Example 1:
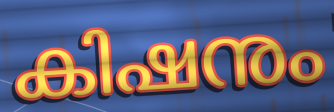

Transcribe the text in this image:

കിഷനും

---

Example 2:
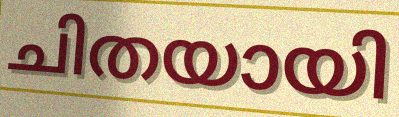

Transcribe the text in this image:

ചിതയായി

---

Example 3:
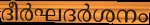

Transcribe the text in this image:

ദീർഘദർശനം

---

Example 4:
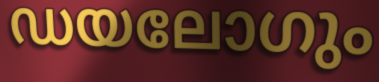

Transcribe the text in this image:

ഡയലോഗും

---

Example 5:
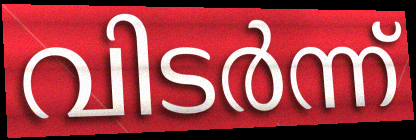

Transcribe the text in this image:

വിടർന്ന്